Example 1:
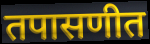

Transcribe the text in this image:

तपासणीत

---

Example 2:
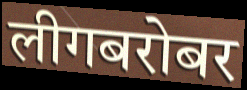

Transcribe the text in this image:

लीगबरोबर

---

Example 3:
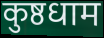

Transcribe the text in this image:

कुष्ठधाम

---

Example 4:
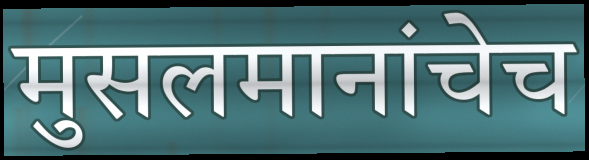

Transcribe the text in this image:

मुसलमानांचेच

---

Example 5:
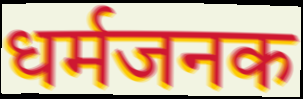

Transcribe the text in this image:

धर्मजनक